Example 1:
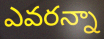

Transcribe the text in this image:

ఎవరన్నా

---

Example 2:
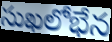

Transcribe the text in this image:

సుఖలోభేన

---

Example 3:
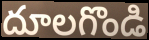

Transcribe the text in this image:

దూలగొండి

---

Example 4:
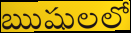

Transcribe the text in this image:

ఋషులలో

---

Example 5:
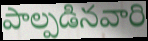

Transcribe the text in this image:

పాల్పడినవారి